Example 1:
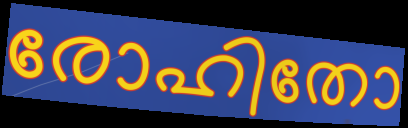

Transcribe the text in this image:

രോഹിതോ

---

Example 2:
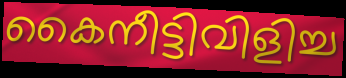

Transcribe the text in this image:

കൈനീട്ടിവിളിച്ച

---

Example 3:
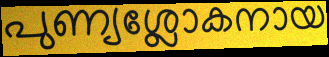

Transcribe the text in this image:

പുണ്യശ്ലോകനായ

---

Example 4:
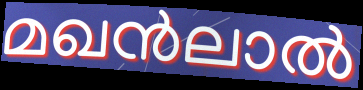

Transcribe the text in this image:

മഖൻലാൽ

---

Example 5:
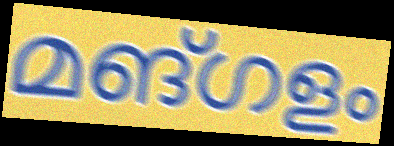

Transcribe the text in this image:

മങ്ഗളം